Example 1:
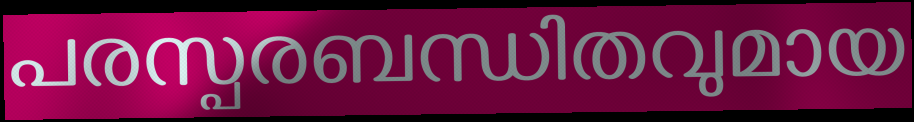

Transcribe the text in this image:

പരസ്പരബന്ധിതവുമായ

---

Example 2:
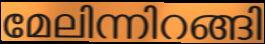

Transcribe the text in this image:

മേലിന്നിറങ്ങി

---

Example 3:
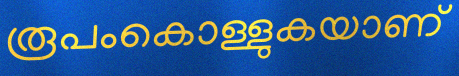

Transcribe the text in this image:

രൂപംകൊള്ളുകയാണ്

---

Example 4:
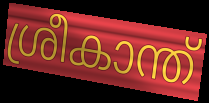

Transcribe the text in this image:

ശ്രീകാന്ത്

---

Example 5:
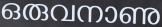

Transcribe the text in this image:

ഒരുവനാണു